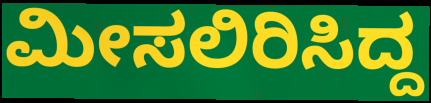
ಮೀಸಲಿರಿಸಿದ್ದ